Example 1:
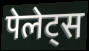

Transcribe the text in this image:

पेलेट्स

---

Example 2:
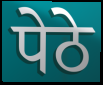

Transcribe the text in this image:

पेठे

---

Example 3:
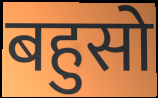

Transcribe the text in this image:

बहुसो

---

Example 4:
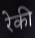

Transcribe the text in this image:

रेकी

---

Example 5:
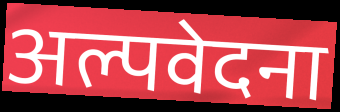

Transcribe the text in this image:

अल्पवेदना